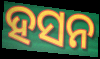
ହସନ